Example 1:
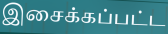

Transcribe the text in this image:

இசைக்கப்பட்ட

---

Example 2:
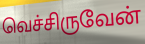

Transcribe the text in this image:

வெச்சிருவேன்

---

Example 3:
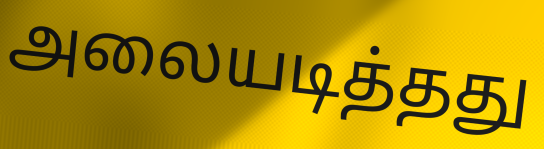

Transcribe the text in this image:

அலையடித்தது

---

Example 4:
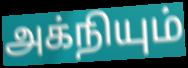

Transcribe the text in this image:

அக்நியும்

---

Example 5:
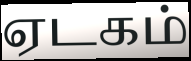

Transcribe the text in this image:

ஏடகம்